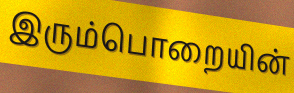
இரும்பொறையின்